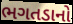
ભગતડાનો